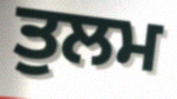
ਤੁਲਮ